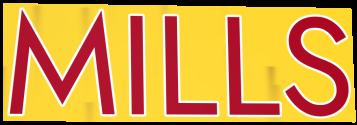
MILLS